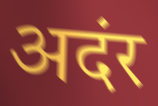
अदंर